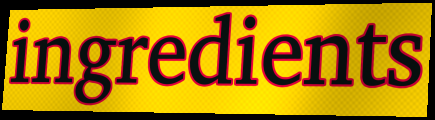
ingredients